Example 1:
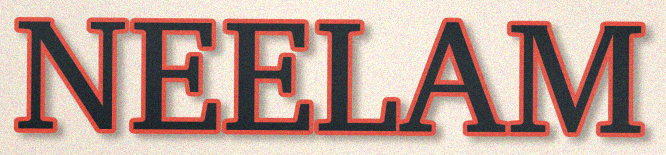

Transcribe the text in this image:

NEELAM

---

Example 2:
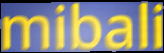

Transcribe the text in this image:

mibali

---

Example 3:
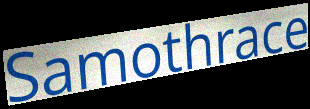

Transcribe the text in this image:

Samothrace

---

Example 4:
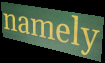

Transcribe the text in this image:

namely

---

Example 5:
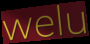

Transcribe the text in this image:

welu